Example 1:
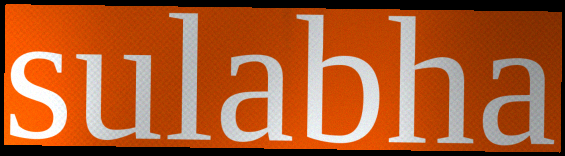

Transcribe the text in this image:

sulabha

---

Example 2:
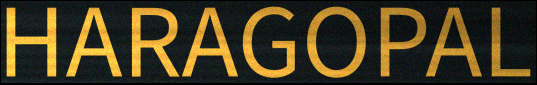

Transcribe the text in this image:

HARAGOPAL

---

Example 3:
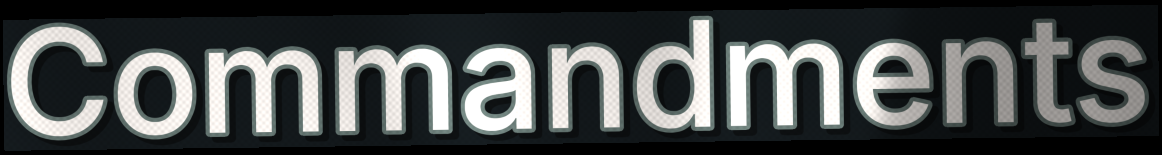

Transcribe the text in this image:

Commandments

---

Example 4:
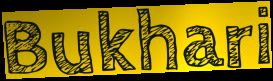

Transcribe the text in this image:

Bukhari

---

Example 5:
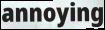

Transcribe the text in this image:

annoying